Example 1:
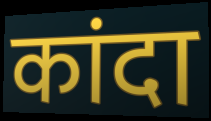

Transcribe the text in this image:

कांदा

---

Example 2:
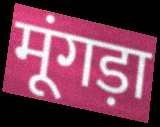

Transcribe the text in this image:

मूंगड़ा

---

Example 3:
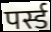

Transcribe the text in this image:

पर्स्ड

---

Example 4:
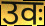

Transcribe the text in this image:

उवः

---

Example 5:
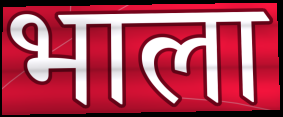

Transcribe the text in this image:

भाला